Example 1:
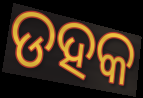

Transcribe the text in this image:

ଡହକ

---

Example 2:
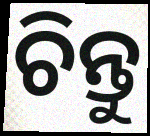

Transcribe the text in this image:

ଚିନ୍ତୁ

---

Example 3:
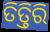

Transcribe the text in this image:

ତିତ୍ତିରି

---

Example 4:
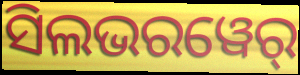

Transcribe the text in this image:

ସିଲଭରୱେର୍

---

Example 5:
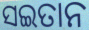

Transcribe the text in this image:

ସଇତାନ